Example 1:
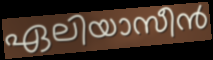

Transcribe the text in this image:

ഏലിയാസീൻ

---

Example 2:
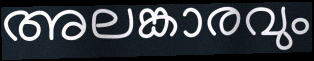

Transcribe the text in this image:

അലങ്കാരവും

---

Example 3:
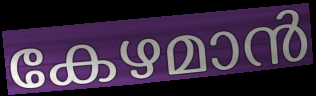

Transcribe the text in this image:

കേഴമാൻ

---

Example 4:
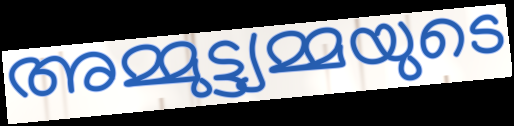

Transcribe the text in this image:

അമ്മുട്ട്യമ്മയുടെ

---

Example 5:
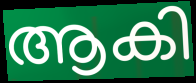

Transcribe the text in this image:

ആകി